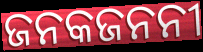
ଜନକଜନନୀ